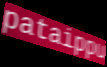
pataippu